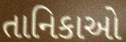
તાનિકાઓ